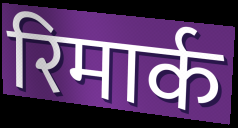
रिमार्क